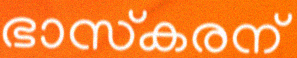
ഭാസ്‌കരന്